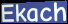
Ekach